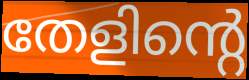
തേളിന്റെ